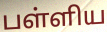
பள்ளிய